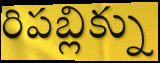
రిపబ్లిక్ను